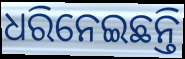
ଧରିନେଇଛନ୍ତି